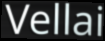
Vellai